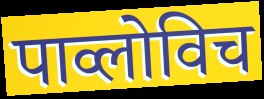
पाव्लोविच